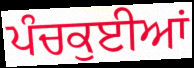
ਪੰਚਕੁਈਆਂ